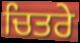
ਚਿਤਰੇ